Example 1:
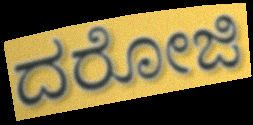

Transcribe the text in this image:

ದರೋಜಿ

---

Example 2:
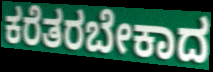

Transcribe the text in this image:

ಕರೆತರಬೇಕಾದ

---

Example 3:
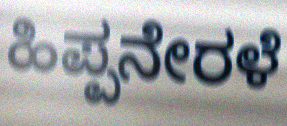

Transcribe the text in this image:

ಹಿಪ್ಪನೇರಳೆ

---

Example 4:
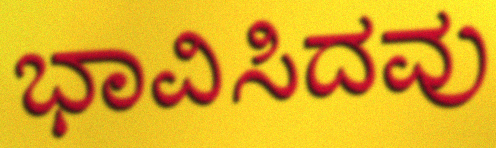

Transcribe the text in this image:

ಭಾವಿಸಿದವು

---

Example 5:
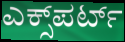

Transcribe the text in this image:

ಎಕ್ಸ್‌ಪರ್ಟ್